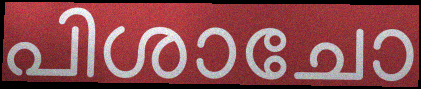
പിശാചോ